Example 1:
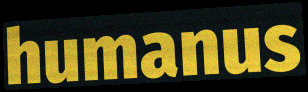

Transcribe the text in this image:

humanus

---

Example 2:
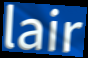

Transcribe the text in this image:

lair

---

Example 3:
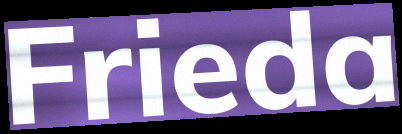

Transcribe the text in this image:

Frieda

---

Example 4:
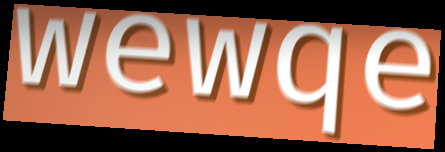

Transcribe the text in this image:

wewqe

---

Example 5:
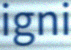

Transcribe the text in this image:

igni